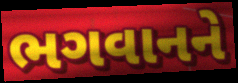
ભગવાનને